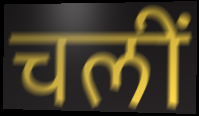
चलीं